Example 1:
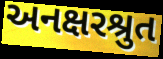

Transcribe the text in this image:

અનક્ષરશ્રુત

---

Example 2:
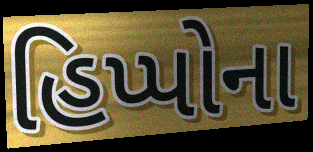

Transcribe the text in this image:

હિપ્પોના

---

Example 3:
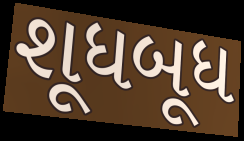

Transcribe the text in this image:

શૂધબૂધ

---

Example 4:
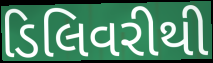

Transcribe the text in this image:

ડિલિવરીથી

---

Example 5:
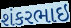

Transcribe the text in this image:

શંકરભાઇ